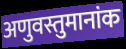
अणुवस्तुमानांक